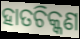
ହାତଚିକ୍କଣ